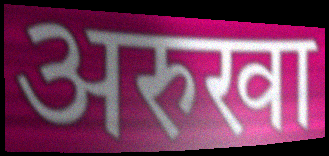
अरुखा